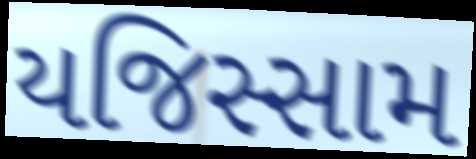
યજિસ્સામ